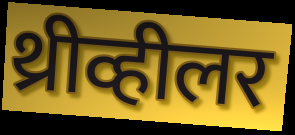
थ्रीव्हीलर